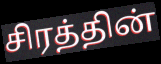
சிரத்தின்